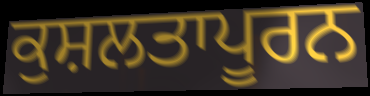
ਕੁਸ਼ਲਤਾਪੂਰਨ